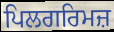
ਪਿਲਗਰਿਮਜ਼